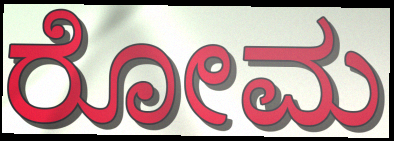
ರೋಮ